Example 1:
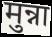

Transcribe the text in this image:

मुन्ना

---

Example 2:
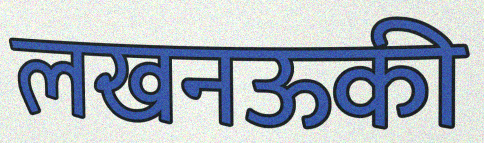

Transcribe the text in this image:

लखनऊकी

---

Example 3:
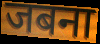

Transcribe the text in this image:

जबना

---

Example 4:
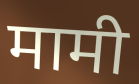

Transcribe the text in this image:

मामी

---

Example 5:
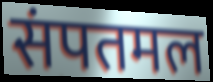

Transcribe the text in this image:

संपतमल